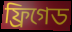
ফ্রিগেড